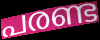
പരണ്ട